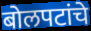
बोलपटांचे